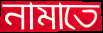
নামাতে